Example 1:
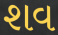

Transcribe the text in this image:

શવ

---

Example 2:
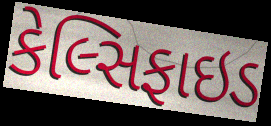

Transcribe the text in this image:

કેલ્સિફાઇડ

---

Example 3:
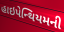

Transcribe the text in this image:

હાઇપેન્થિયમની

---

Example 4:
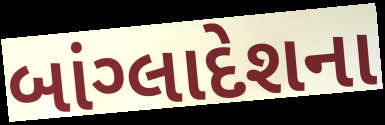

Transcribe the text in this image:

બાંગ્લાદેશના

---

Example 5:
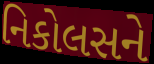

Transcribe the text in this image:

નિકોલસને